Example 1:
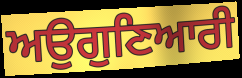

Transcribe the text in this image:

ਅਉਗੁਣਿਆਰੀ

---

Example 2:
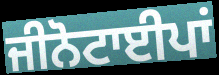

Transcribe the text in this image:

ਜੀਨੋਟਾਈਪਾਂ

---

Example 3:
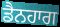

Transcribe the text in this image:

ਡੈਨਹਾਗ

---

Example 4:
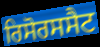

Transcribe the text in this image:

ਰਿਸੋਰਸਸੈਟ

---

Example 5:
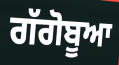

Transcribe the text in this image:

ਗੱਗੋਬੂਆ